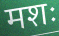
मशः